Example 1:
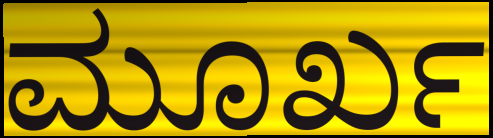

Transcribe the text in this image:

ಮೂರ್ಖ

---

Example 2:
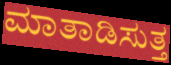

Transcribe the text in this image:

ಮಾತಾಡಿಸುತ್ತ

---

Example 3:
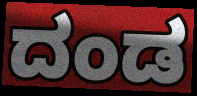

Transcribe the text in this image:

ದಂಡ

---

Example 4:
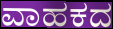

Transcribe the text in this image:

ವಾಹಕದ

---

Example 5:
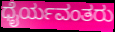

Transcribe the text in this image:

ಧೈರ್ಯವಂತರು